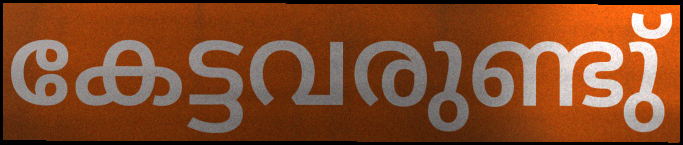
കേട്ടവരുണ്ടു്